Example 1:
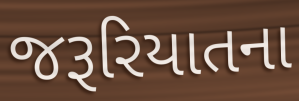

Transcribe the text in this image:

જરૂરિયાતના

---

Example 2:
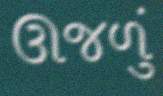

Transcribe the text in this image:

ઊજળું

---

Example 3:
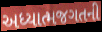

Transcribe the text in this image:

અધ્યાત્મજગતની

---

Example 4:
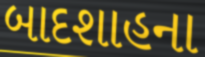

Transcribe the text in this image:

બાદશાહના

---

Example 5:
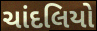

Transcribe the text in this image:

ચાંદલિયો